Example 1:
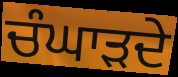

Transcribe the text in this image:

ਚੰਘਾੜਦੇ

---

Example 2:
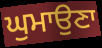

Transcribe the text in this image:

ਘੁਮਾਉਣਾ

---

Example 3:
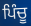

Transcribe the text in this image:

ਪਿੰਚੂ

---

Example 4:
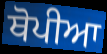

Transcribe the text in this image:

ਥੋਪੀਆ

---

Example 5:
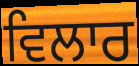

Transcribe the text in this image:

ਵਿਲਾਰ